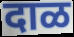
दाळ